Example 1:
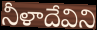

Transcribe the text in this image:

నీళాదేవిని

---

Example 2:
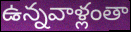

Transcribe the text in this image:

ఉన్నవాళ్లంతా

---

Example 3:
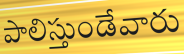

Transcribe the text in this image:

పాలిస్తుండేవారు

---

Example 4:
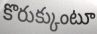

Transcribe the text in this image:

కొరుక్కుంటూ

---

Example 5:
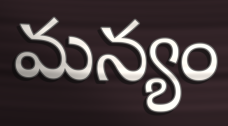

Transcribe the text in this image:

మన్యం